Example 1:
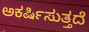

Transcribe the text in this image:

ಅಕರ್ಷಿಸುತ್ತದೆ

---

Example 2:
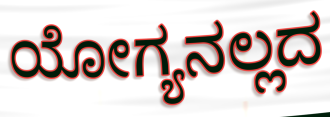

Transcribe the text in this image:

ಯೋಗ್ಯನಲ್ಲದ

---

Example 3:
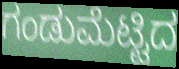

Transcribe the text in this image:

ಗಂಡುಮೆಟ್ಟಿದ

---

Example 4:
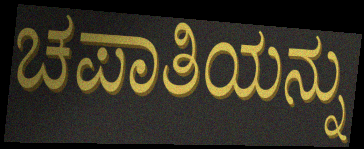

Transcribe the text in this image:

ಚಪಾತಿಯನ್ನು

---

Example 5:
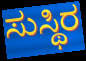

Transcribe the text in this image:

ಸುಸ್ಥಿರ